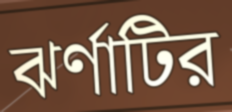
ঝর্ণাটির